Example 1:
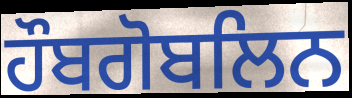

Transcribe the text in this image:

ਹੌਬਗੋਬਲਿਨ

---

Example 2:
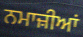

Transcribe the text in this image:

ਨਮਾਜ਼ੀਆਂ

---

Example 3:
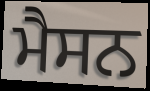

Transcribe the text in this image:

ਮੈਸਨ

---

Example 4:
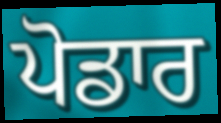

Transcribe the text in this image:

ਪੋਡਾਰ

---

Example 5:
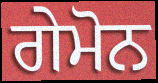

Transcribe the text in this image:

ਗੇਮੋਨ